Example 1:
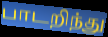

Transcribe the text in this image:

பாடறிந்து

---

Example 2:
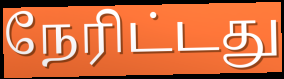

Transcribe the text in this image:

நேரிட்டது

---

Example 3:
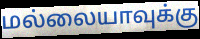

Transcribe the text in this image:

மல்லையாவுக்கு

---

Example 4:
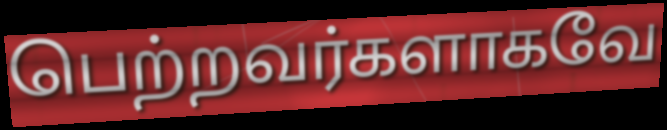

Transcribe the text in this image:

பெற்றவர்களாகவே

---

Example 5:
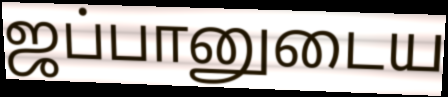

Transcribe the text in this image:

ஜப்பானுடைய